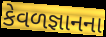
કેવળજ્ઞાનના